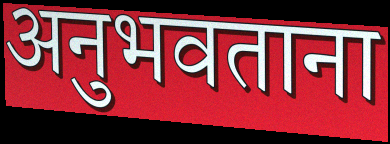
अनुभवताना